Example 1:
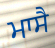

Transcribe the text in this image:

ਮਾਸੈ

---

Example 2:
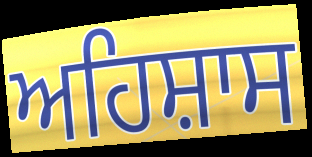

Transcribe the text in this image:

ਅਹਿਸ਼ਾਸ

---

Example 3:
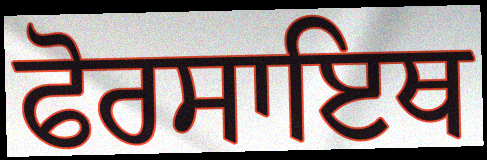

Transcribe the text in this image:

ਫੋਰਸਾਇਥ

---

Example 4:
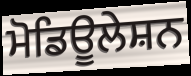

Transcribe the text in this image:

ਮੋਡਿਊਲੇਸ਼ਨ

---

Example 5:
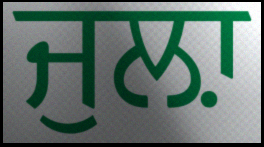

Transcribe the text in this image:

ਜੁਲ਼ਾ